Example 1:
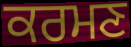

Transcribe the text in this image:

ਕਰਮਣ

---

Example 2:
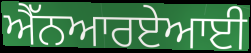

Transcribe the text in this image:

ਐੱਨਆਰਏਆਈ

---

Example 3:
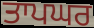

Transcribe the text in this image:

ਤਾਪਘਰ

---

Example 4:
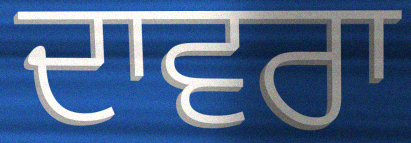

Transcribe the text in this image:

ਦਾਵਰਾ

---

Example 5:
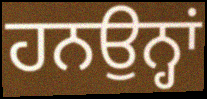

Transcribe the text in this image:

ਹਨਉਨ੍ਹਾਂ